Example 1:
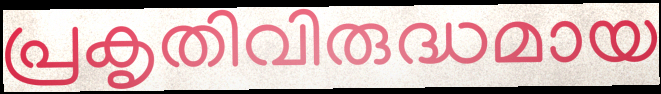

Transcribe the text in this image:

പ്രകൃതിവിരുദ്ധമായ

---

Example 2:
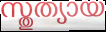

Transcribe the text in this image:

സ്തുത്യായ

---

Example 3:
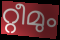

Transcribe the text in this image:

റ്റീമും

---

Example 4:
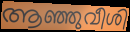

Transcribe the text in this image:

ആഞ്ഞുവീശി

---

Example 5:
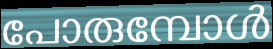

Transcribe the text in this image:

പോരുമ്പോൾ